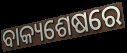
ବାକ୍ୟଶେଷରେ